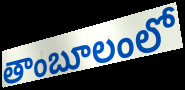
తాంబూలంలో